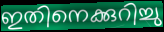
ഇതിനെക്കുറിച്ചു